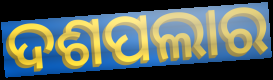
ଦଶପଲାର